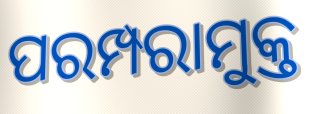
ପରମ୍ପରାମୁକ୍ତ